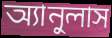
অ্যানুলাস